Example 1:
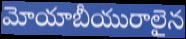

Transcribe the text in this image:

మోయాబీయురాలైన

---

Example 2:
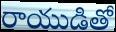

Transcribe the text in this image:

రాయుడితో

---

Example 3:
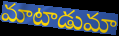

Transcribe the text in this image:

మాటాడుమా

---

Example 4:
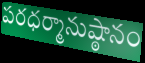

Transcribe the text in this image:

పరధర్మానుష్ఠానం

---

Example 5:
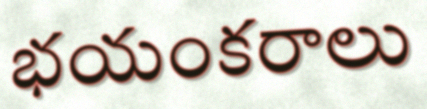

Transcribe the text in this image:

భయంకరాలు